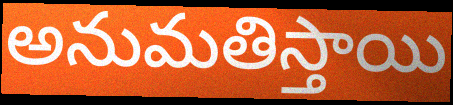
అనుమతిస్తాయి